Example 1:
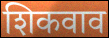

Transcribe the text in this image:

शिकवाव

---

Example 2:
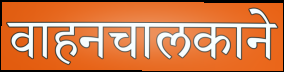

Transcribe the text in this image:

वाहनचालकाने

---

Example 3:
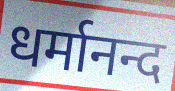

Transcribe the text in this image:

धर्मानन्द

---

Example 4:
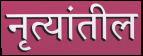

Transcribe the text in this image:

नृत्यांतील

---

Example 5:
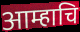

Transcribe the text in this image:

आम्हाचि